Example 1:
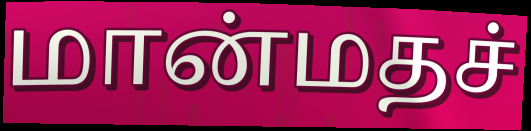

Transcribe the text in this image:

மான்மதச்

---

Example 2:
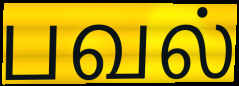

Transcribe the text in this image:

பவல்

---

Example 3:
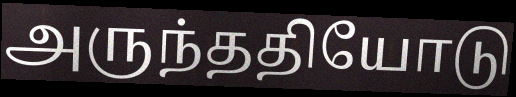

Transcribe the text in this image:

அருந்ததியோடு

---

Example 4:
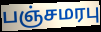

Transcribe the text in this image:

பஞ்சமரபு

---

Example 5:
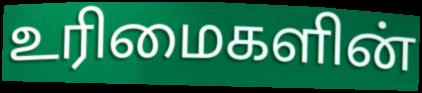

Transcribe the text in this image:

உரிமைகளின்